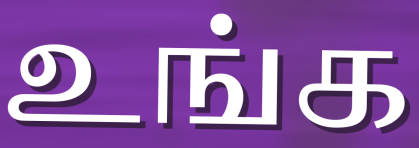
உங்க